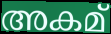
അകമ്